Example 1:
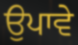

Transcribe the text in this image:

ਉਪਾਵੇ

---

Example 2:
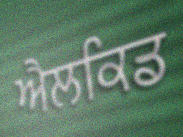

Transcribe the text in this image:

ਐਲਕਿਡ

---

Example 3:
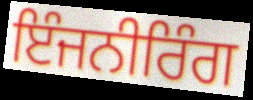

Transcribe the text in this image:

ਇੰਜਨੀਰਿੰਗ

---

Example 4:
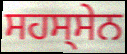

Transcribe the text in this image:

ਸਹਸ੍ਸੇਨ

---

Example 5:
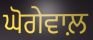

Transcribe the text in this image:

ਘੋਗੇਵਾਲ਼